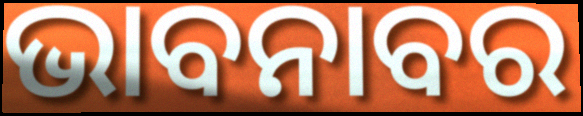
ଭାବନାବର